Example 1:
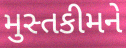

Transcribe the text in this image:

મુસ્તકીમને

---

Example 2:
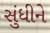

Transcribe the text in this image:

સુંધીને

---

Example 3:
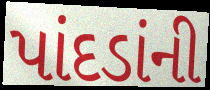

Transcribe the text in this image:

પાંદડાંની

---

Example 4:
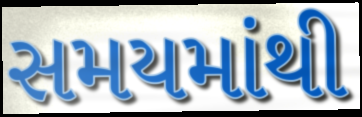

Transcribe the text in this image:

સમયમાંથી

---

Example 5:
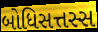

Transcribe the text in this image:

બોધિસત્તસ્સ